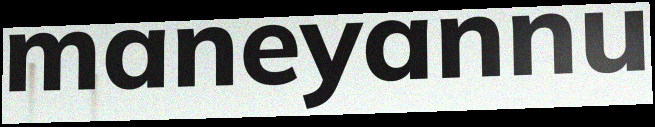
maneyannu